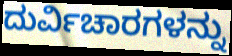
ದುರ್ವಿಚಾರಗಳನ್ನು